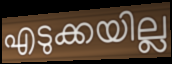
എടുക്കയില്ല